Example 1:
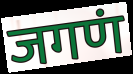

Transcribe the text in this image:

जगणं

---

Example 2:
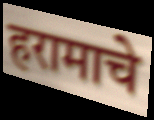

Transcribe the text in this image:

हरामाचे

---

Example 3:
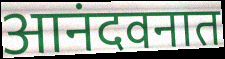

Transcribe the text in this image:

आनंदवनात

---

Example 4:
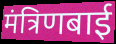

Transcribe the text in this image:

मंत्रिणबाई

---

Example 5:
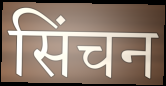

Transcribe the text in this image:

सिंचन